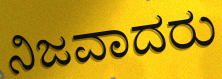
ನಿಜವಾದರು